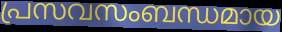
പ്രസവസംബന്ധമായ